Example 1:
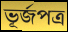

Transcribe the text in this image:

ভূর্জপত্র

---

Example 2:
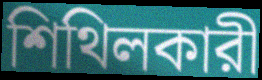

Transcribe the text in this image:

শিথিলকারী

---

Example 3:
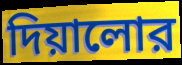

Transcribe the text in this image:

দিয়ালোর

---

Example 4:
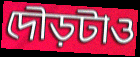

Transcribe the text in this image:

দৌড়টাও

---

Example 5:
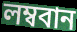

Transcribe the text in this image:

লম্ববান